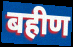
बहीण